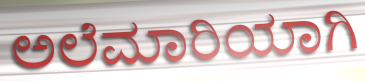
ಅಲೆಮಾರಿಯಾಗಿ